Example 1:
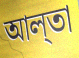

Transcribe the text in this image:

আল্‌তা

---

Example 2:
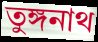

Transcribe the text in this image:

তুঙ্গনাথ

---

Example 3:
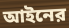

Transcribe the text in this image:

আইনের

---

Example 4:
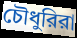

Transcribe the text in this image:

চৌধুরিরা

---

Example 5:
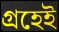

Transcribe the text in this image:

গ্রহেই